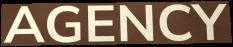
AGENCY